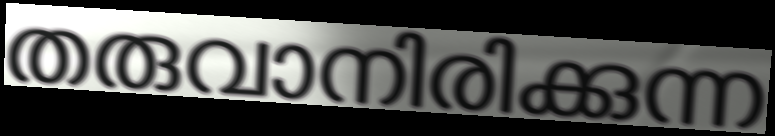
തരുവാനിരിക്കുന്ന